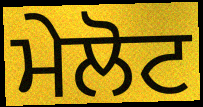
ਮੇਲੋਟ